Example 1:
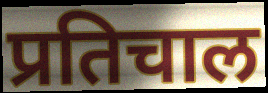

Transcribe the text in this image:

प्रतिचाल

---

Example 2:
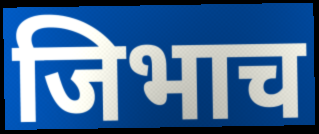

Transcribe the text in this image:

जिभाच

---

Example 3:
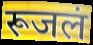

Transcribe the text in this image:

रूजलं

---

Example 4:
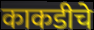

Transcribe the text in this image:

काकडीचे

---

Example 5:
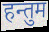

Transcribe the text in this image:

हन्तुम